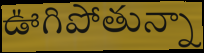
ఊగిపోతున్నా